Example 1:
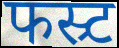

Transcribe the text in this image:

फस्र्ट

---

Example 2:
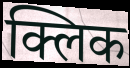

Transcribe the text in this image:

क्लिक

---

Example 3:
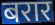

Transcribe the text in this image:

बरार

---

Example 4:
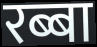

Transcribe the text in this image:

रब्बा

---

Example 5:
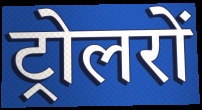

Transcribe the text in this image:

ट्रोलरों